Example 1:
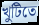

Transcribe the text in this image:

খুটিতে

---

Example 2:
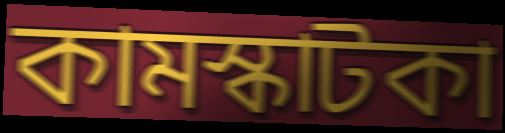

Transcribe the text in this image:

কামস্কাটকা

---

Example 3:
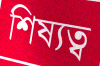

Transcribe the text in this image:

শিষ্যত্ব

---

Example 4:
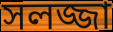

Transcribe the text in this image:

সলজ্জা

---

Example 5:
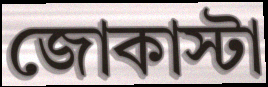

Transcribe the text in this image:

জোকাস্টা